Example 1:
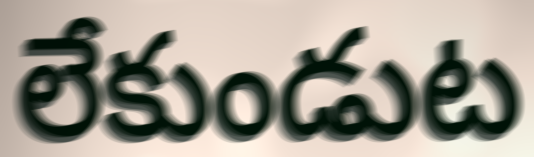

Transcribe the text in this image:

లేకుండుట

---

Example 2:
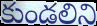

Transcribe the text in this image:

కుండలిని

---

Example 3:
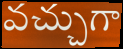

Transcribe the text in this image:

వచ్చుగా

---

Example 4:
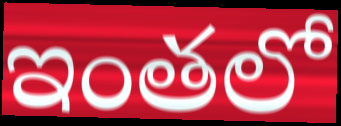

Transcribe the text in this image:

ఇంతలో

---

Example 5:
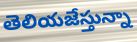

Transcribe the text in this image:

తెలియజేస్తున్నా